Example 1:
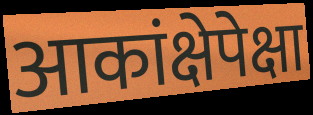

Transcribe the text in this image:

आकांक्षेपेक्षा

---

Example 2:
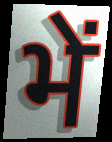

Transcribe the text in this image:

भें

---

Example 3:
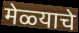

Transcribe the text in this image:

मेळ्याचे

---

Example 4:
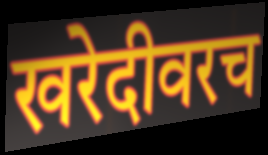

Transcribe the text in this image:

खरेदीवरच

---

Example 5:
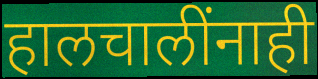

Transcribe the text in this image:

हालचालींनाही